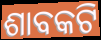
ଶାବକଟି